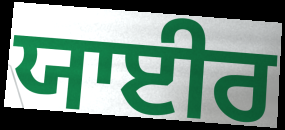
ਯਾਈਰ